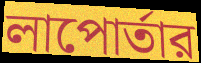
লাপোর্তার